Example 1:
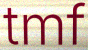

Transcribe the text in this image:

tmf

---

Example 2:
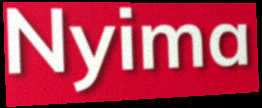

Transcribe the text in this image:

Nyima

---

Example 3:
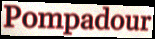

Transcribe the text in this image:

Pompadour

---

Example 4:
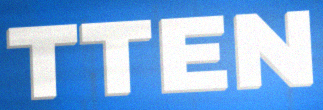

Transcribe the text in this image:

TTEN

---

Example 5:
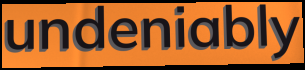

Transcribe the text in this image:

undeniably